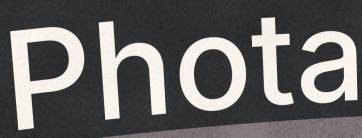
Phota